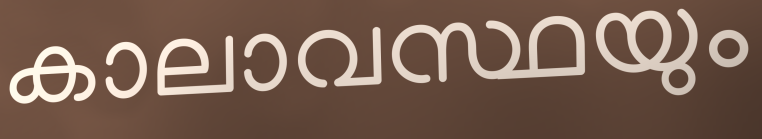
കാലാവസ്ഥയും